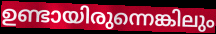
ഉണ്ടായിരുന്നെങ്കിലും